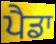
ਪੈਡਾ